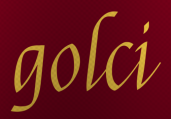
golci